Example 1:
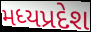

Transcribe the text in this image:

મધ્યપ્રદેશ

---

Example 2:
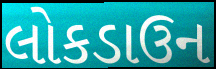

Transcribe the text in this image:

લોકડાઉન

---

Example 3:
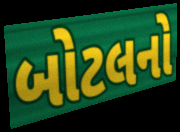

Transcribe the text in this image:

બોટલનો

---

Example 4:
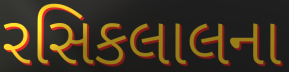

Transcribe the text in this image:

રસિકલાલના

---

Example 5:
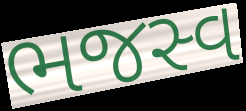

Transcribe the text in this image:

ભજસ્વ